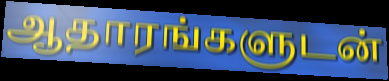
ஆதாரங்களுடன்